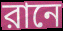
রানে